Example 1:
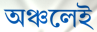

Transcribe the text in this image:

অঞ্চলেই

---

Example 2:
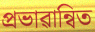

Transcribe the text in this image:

প্ৰভাৱান্বিত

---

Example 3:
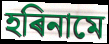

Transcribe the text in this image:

হৰিনামে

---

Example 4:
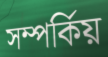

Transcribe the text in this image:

সম্পৰ্কিয়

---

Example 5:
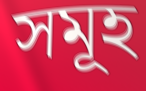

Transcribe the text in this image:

সমূহ